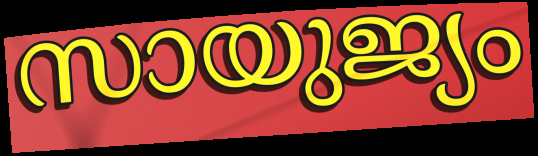
സായുജ്യം